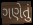
ગણેતું